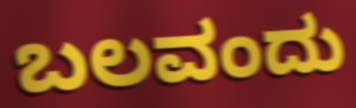
ಬಲವಂದು